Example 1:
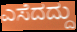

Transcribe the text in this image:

ಎಸೆದದ್ದು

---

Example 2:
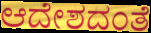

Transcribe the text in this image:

ಆದೇಶದಂತೆ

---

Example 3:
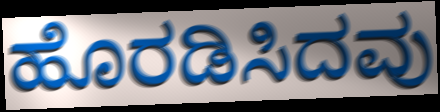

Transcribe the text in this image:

ಹೊರಡಿಸಿದವು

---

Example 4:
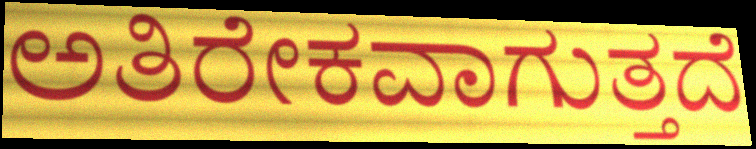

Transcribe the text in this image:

ಅತಿರೇಕವಾಗುತ್ತದೆ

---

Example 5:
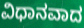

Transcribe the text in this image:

ವಿಧಾನವಾದ